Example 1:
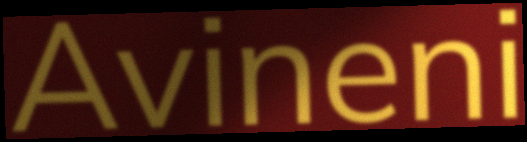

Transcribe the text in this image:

Avineni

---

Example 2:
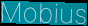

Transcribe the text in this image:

Mobius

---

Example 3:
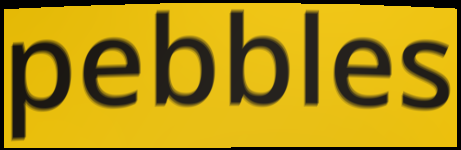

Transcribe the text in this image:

pebbles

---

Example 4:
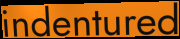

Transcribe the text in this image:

indentured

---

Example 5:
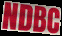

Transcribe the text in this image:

NDBC